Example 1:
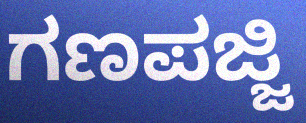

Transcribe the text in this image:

ಗಣಪಜ್ಜಿ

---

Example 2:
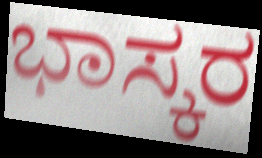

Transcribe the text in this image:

ಭಾಸ್ಕರ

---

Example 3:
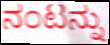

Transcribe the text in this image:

ನಂಟನ್ನು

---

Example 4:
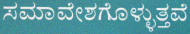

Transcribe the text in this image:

ಸಮಾವೇಶಗೊಳ್ಳುತ್ತವೆ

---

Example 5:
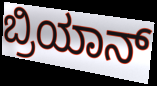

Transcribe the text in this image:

ಬ್ರಿಯಾನ್